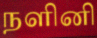
நளினி